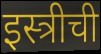
इस्त्रीची